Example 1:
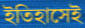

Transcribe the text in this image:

ইতিহাসেই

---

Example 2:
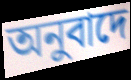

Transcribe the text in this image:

অনুবাদে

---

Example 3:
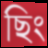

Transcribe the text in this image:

ছিং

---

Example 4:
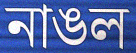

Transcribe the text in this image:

নাঙল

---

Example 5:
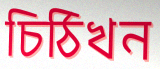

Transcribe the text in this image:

চিঠিখন